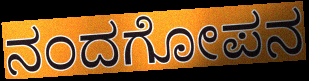
ನಂದಗೋಪನ